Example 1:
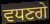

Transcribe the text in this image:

ਵਧਣਗੇ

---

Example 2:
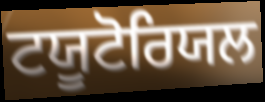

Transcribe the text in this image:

ਟਯੂਟੋਰਿਯਲ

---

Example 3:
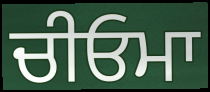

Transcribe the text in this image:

ਚੀਓਮਾ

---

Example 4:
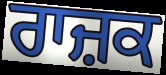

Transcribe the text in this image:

ਰਾਜ਼ਕ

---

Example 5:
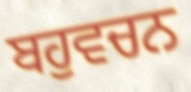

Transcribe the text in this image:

ਬਹੁਵਚਨ